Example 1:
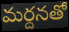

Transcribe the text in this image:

మర్దనతో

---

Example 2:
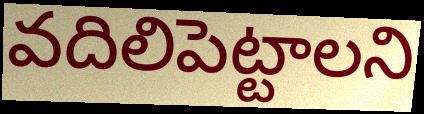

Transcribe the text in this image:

వదిలిపెట్టాలని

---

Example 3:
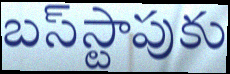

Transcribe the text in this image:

బస్‌స్టాపుకు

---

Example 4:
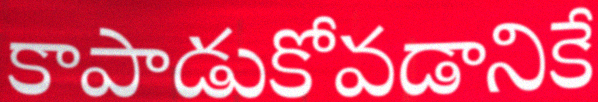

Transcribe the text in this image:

కాపాడుకోవడానికే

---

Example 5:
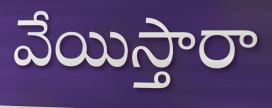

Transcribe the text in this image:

వేయిస్తారా